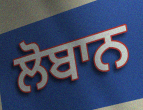
ਲੋਬਾਨ